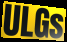
ULGs